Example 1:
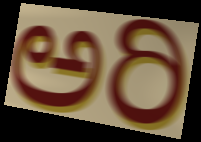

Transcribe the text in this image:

ಅರಿ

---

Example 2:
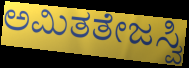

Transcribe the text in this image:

ಅಮಿತತೇಜಸ್ವಿ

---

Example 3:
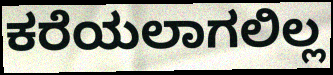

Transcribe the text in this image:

ಕರೆಯಲಾಗಲಿಲ್ಲ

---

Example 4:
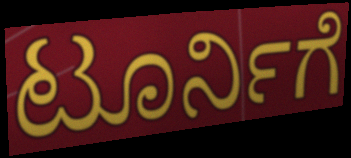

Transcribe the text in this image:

ಟೂರ್ನಿಗೆ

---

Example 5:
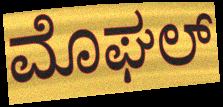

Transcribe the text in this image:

ಮೊಘಲ್